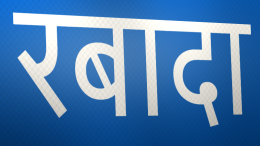
रबादा